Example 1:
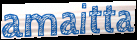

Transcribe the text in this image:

amaitta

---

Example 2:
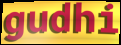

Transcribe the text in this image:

gudhi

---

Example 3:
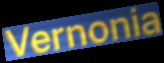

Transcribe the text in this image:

Vernonia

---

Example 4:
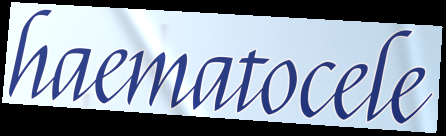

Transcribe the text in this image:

haematocele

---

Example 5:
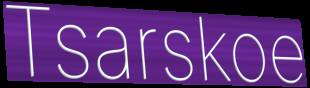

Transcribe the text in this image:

Tsarskoe